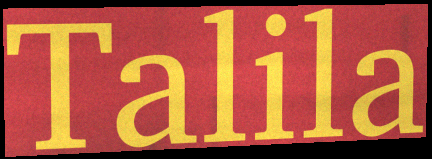
Talila